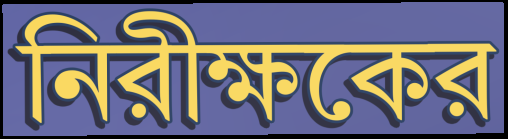
নিরীক্ষকের